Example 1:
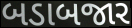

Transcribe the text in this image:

બડાબજાર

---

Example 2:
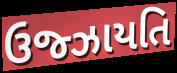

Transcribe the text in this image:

ઉજ્ઝાયતિ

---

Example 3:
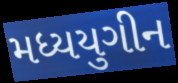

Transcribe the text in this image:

મધ્યયુગીન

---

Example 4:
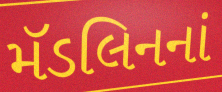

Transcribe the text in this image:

મૅડલિનનાં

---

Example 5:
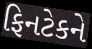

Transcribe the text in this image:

ફિનટેકને